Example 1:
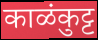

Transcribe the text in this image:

काळंकुट्ट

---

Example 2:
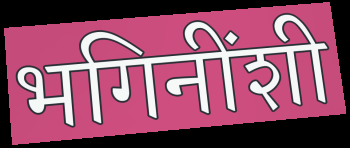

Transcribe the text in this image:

भगिनींशी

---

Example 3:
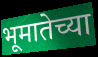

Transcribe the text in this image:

भूमातेच्या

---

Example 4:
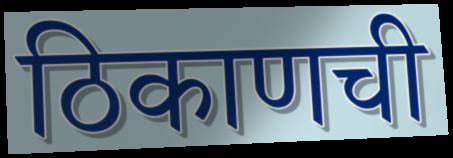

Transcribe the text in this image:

ठिकाणची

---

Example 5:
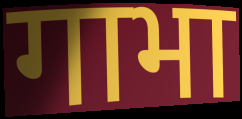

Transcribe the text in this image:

गाभा